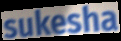
sukesha